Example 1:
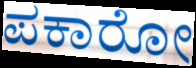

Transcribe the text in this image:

ಪಕಾರೋ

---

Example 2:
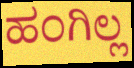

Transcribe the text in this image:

ಹಂಗಿಲ್ಲ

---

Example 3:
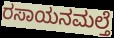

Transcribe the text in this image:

ರಸಾಯನಮಲ್ತೆ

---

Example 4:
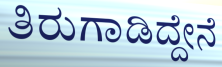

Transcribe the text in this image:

ತಿರುಗಾಡಿದ್ದೇನೆ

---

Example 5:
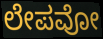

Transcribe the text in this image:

ಲೇಪವೋ